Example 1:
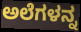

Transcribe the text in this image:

ಅಲೆಗಳನ್ನ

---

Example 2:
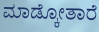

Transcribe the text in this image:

ಮಾಡ್ಕೋತಾರೆ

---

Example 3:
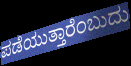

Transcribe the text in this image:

ಪಡೆಯುತ್ತಾರೆಂಬುದು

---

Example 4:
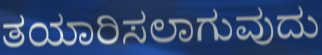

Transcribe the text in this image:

ತಯಾರಿಸಲಾಗುವುದು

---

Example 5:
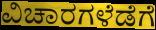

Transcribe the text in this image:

ವಿಚಾರಗಳೆಡೆಗೆ